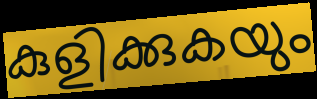
കുളിക്കുകയും